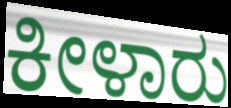
ಕೀಳಾರು